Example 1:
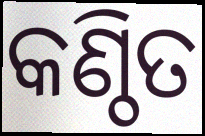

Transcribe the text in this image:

କଣ୍ଠିତ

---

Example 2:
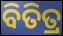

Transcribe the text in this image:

ବିତିତ୍ର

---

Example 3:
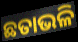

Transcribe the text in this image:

ଛତାଭଳି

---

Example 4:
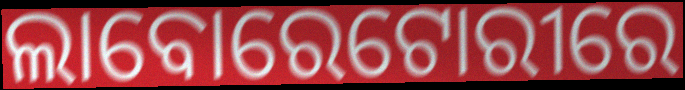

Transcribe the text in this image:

ଲାବୋରେଟୋରୀରେ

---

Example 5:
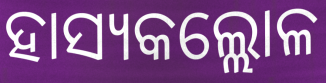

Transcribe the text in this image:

ହାସ୍ୟକଲ୍ଲୋଳ